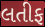
લતીફ